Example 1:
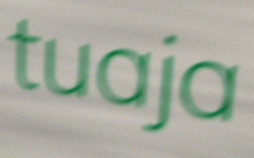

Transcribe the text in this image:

tuaja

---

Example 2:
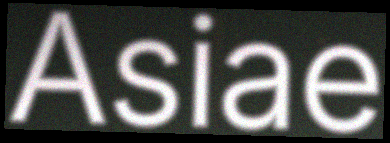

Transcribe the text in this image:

Asiae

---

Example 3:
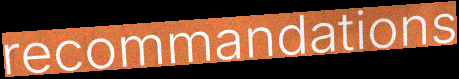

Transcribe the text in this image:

recommandations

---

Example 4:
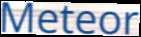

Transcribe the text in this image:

Meteor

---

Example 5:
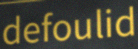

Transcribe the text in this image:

defoulid